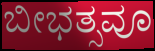
ಬೀಭತ್ಸವೂ